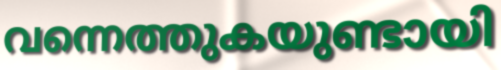
വന്നെത്തുകയുണ്ടായി